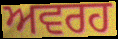
ਅਵਰਹ